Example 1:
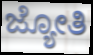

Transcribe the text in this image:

ಜ್ಯೋತಿ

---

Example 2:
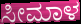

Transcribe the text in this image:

ಸೀಮಾಳ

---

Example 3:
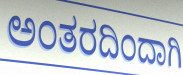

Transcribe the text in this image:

ಅಂತರದಿಂದಾಗಿ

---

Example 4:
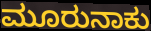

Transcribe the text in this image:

ಮೂರುನಾಕು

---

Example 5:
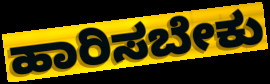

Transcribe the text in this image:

ಹಾರಿಸಬೇಕು